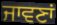
ਜਾਵਣਾਂ